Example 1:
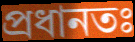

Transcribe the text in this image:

প্রধানতঃ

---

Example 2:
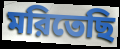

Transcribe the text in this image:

মরিতেছি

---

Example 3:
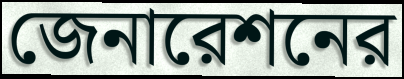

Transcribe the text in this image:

জেনারেশনের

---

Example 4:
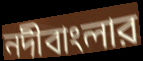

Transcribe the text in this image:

নদীবাংলার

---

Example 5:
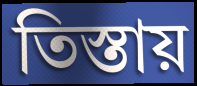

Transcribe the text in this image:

তিস্তায়